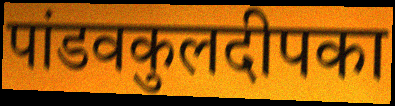
पांडवकुलदीपका